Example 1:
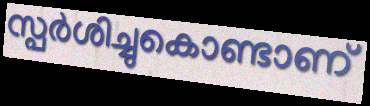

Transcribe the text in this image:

സ്പർശിച്ചുകൊണ്ടാണ്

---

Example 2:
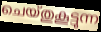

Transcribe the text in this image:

ചെയ്തുകൂട്ടുന്ന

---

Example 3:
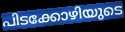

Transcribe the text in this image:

പിടക്കോഴിയുടെ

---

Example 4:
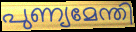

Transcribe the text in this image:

പുണ്യമേന്തി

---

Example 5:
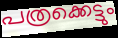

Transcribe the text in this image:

പത്രക്കെട്ടും